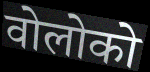
वोलोको